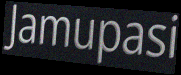
Jamupasi